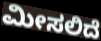
ಮೀಸಲಿದೆ